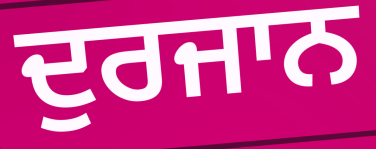
ਦੁਰਜਾਨ